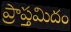
ప్రాప్తమిదం